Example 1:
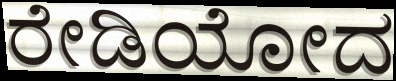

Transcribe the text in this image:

ರೇಡಿಯೋದ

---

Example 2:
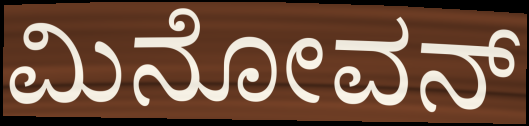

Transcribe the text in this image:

ಮಿನೋವನ್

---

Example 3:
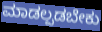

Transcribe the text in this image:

ಮಾಡಲ್ಪಡಬೇಕು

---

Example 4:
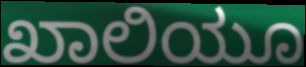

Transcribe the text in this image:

ಖಾಲಿಯೂ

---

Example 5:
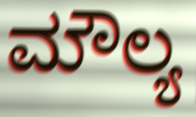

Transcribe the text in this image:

ಮೌಲ್ಯ